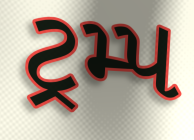
ટ્રમ્પ